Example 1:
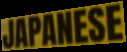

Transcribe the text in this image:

JAPANESE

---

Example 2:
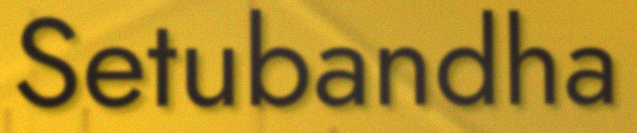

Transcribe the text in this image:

Setubandha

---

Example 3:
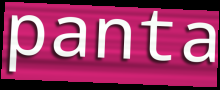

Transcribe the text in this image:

panta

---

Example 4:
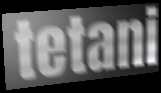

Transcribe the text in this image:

tetani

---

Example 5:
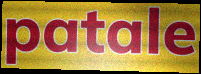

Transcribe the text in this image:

patale